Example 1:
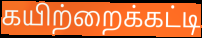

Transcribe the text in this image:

கயிற்றைக்கட்டி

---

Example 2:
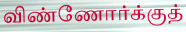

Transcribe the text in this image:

விண்ணோர்க்குத்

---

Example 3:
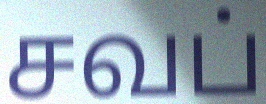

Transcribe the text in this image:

சவப்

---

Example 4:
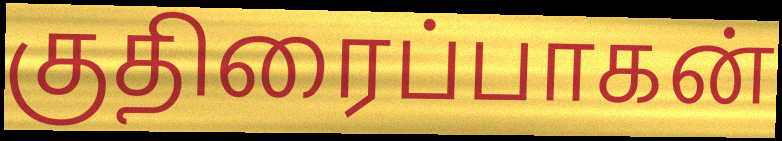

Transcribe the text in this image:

குதிரைப்பாகன்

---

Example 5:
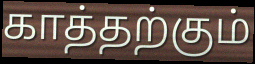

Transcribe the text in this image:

காத்தற்கும்